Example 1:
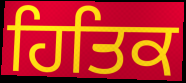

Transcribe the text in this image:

ਹਿਤਿਕ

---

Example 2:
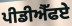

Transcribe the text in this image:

ਪੀਡੀਐੱਫਏ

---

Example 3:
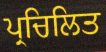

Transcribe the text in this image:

ਪ੍ਰਚਿਲਿਤ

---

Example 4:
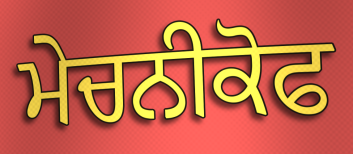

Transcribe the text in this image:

ਮੇਚਨੀਕੋਫ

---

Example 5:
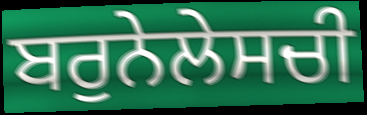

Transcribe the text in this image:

ਬਰੁਨੇਲੇਸਚੀ